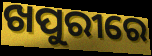
ଖପୁରୀରେ